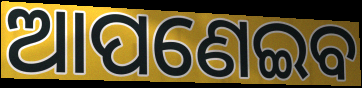
ଆପଣେଇବ